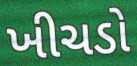
ખીચડો